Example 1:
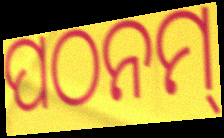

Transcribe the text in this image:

ପଠନମ୍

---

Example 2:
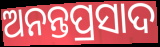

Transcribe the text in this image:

ଅନନ୍ତପ୍ରସାଦ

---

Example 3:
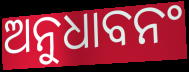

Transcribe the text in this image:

ଅନୁଧାବନଂ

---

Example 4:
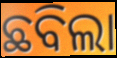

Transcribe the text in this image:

ଛବିଲା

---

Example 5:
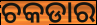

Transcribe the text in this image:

ଚକଡାର